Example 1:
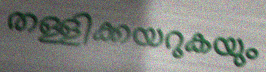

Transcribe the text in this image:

തള്ളിക്കയറുകയും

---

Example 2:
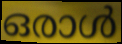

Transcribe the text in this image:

ഒരാൾ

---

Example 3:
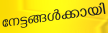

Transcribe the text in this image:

നേട്ടങ്ങൾക്കായി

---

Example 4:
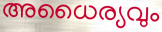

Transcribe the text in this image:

അധൈര്യവും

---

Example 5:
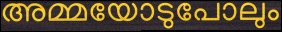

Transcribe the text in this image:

അമ്മയോടുപോലും